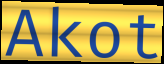
Akot